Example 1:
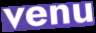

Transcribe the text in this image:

venu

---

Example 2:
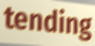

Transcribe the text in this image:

tending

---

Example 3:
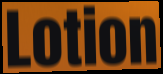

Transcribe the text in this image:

Lotion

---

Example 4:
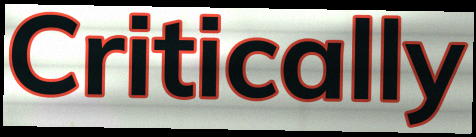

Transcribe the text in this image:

Critically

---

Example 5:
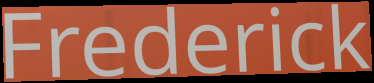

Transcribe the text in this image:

Frederick